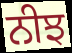
ਨੀਝ